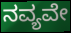
ನವ್ಯವೇ